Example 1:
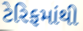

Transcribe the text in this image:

ટેરિફમાંથી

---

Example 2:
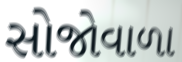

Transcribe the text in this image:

સોજોવાળા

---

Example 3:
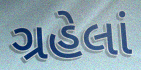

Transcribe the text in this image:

ગ્રહેલાં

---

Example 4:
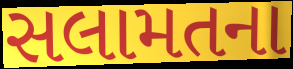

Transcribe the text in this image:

સલામતના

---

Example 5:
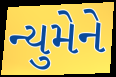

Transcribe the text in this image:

ન્યુમેને